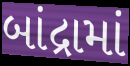
બાંદ્રામાં